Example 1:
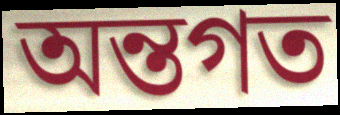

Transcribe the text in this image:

অন্তগত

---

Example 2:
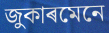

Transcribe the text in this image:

জুকাৰমেনে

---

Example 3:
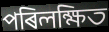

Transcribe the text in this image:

পৰিলক্ষিত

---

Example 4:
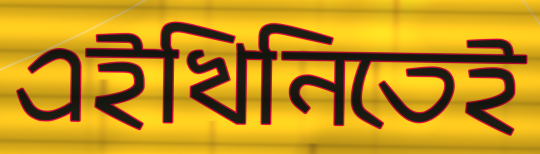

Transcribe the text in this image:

এইখিনিতেই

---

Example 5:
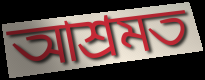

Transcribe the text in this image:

আশ্ৰমত